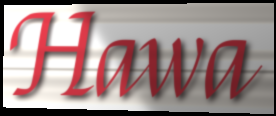
Hawa